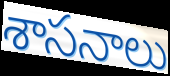
శాసనాలు